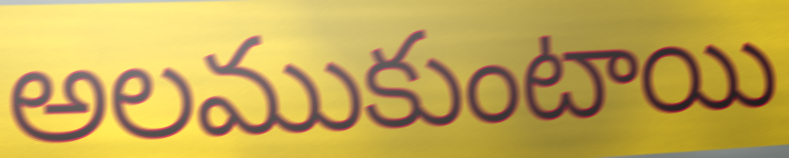
అలముకుంటాయి